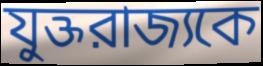
যুক্তরাজ্যকে